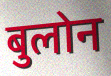
बुलोन